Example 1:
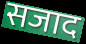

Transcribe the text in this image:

सजाद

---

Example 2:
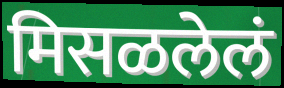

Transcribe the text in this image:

मिसळलेलं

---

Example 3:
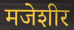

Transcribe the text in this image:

मजेशीर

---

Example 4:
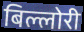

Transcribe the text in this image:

बिल्लोरी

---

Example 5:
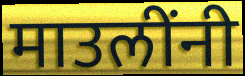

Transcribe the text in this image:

माउलींनी